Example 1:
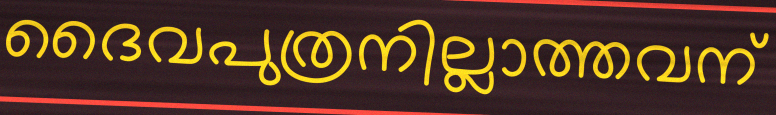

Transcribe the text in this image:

ദൈവപുത്രനില്ലാത്തവന്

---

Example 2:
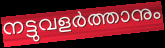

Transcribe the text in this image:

നട്ടുവളർത്താനും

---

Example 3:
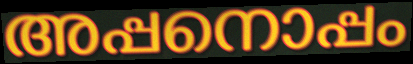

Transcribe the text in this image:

അപ്പനൊപ്പം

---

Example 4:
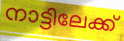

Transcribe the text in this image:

നാട്ടിലേക്ക്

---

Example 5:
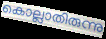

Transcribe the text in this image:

കൊല്ലാതിരുന്നു